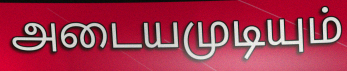
அடையமுடியும்